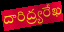
దారిద్ర్యరేఖ